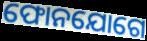
ଫୋନଯୋଗେ